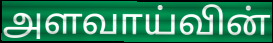
அளவாய்வின்